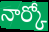
నార్కో